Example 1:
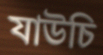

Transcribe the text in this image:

যাউচি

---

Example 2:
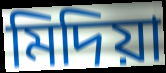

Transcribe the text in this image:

মিদিয়া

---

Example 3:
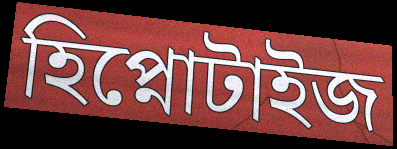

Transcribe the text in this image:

হিপ্নোটাইজ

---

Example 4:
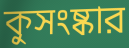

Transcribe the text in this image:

কুসংষ্কার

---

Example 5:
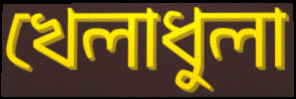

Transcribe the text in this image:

খেলাধুলা